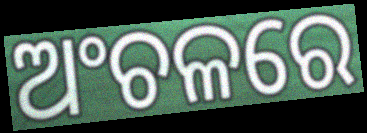
ଅଂଚଳରେ